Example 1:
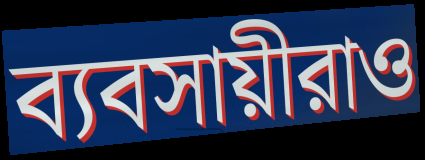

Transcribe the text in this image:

ব্যবসায়ীরাও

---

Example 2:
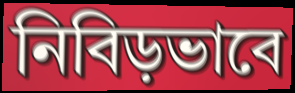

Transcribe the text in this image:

নিবিড়ভাবে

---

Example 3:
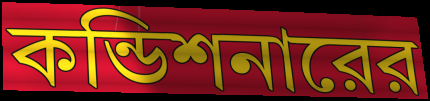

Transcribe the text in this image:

কন্ডিশনারের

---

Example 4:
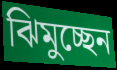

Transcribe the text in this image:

ঝিমুচ্ছেন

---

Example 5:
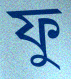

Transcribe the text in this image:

ফু